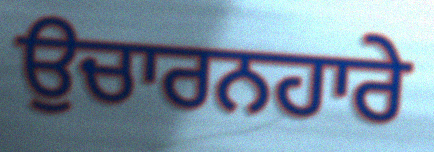
ਉਚਾਰਨਹਾਰੇ